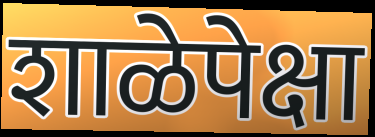
शाळेपेक्षा